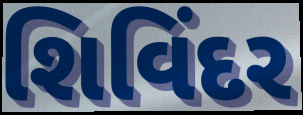
શિવિંદર